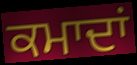
ਕਮਾਦਾਂ